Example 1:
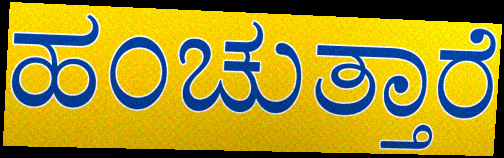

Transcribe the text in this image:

ಹಂಚುತ್ತಾರೆ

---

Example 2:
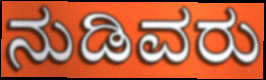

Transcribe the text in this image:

ನುಡಿವರು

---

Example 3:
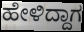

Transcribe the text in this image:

ಹೇಳಿದ್ದಾಗ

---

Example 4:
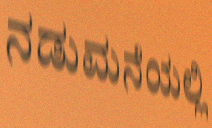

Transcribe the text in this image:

ನಡುಮನೆಯಲ್ಲಿ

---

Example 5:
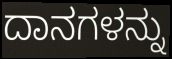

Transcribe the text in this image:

ದಾನಗಳನ್ನು